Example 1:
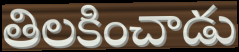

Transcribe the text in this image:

తిలకించాడు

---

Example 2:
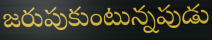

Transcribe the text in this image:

జరుపుకుంటున్నపుడు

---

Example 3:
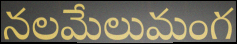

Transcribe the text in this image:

నలమేలుమంగ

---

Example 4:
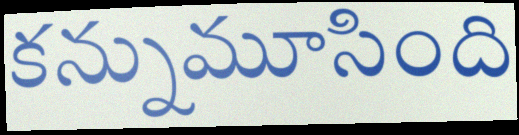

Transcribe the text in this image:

కన్నుమూసింది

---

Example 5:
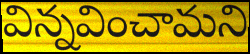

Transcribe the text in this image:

విన్నవించామని